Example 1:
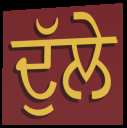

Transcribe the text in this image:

ਦੁੱਲੇ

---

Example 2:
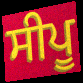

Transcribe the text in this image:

ਸੀਪੂ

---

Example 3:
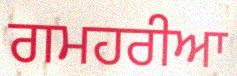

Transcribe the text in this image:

ਗਮਹਰੀਆ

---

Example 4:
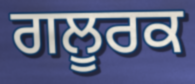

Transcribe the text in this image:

ਗਲੂਰਕ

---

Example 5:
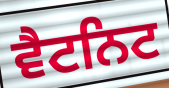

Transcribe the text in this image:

ਵੈਟਨਿਟ